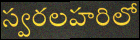
స్వరలహరిలో